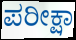
ಪರೀಕ್ಷಾ